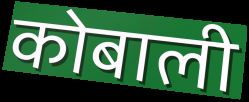
कोबाली